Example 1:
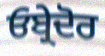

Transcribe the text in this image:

ਓਬ੍ਰੇਦੋਰ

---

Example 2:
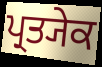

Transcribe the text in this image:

ਪ੍ਰਤ੍ਯੇਕ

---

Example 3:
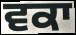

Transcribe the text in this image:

ਵਕਾ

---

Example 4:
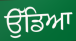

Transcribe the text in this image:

ਉੱਡਿਆ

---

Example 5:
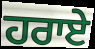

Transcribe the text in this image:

ਹਰਾਏ